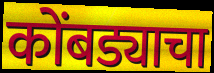
कोंबड्याचा